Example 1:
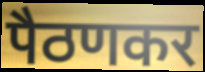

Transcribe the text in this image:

पैठणकर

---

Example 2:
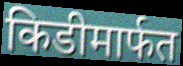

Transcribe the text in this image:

किडीमार्फत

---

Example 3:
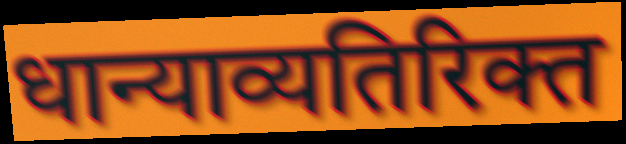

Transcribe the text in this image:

धान्याव्यतिरिक्त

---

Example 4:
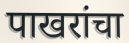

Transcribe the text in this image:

पाखरांचा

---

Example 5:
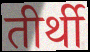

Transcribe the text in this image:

तीर्थी